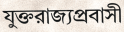
যুক্তরাজ্যপ্রবাসী